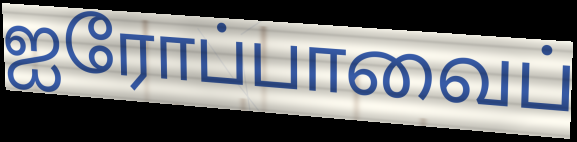
ஐரோப்பாவைப்